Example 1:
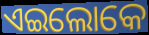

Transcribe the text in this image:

ଏଇଲୋକେ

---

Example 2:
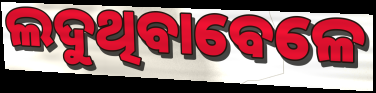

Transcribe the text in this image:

ଲଦୁଥିବାବେଳେ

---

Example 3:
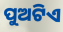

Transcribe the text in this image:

ପୁଅଟିଏ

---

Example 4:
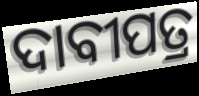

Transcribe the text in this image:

ଦାବୀପତ୍ର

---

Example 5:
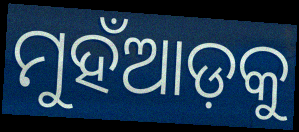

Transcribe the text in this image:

ମୁହଁଆଡ଼କୁ